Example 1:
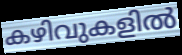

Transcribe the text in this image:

കഴിവുകളിൽ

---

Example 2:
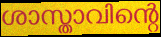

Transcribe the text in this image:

ശാസ്താവിന്റെ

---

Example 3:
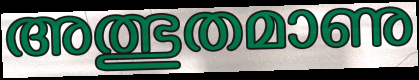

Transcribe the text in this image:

അത്ഭുതമാണു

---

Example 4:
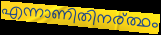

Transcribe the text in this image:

എന്നാണിതിനര്ത്ഥം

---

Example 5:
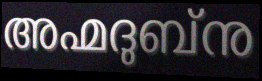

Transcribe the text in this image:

അഹ്മദുബ്നു